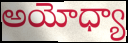
అయోధ్యా